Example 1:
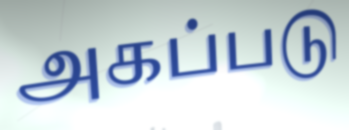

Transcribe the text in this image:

அகப்படு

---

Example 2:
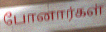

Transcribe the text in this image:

போனார்கள்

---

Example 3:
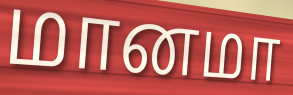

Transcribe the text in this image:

மானமா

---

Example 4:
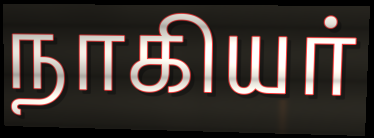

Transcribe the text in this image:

நாகியர்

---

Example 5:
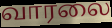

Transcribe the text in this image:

வாரலை